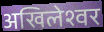
अखिलेश्वर